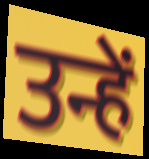
उन्हें